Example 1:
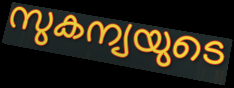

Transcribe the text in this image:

സുകന്യയുടെ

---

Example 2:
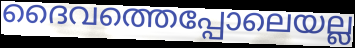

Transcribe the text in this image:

ദൈവത്തെപ്പോലെയല്ല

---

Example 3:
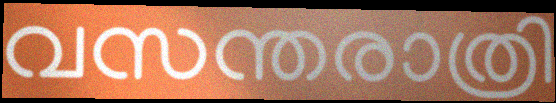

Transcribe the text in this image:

വസന്തരാത്രി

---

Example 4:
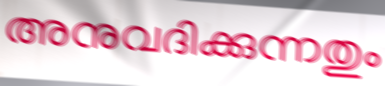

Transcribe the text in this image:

അനുവദിക്കുന്നതും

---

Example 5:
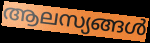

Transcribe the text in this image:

ആലസ്യങ്ങൾ